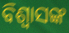
ବିଶ୍ୱାସଙ୍କ